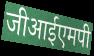
जीआईएमपी